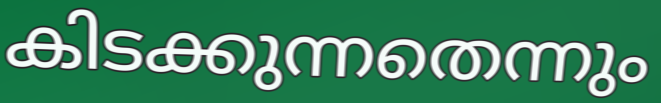
കിടക്കുന്നതെന്നും